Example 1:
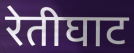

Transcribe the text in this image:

रेतीघाट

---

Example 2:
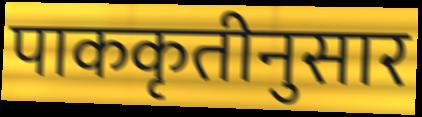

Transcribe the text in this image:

पाककृतीनुसार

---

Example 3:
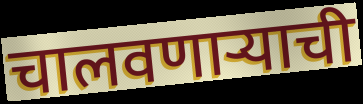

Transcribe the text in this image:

चालवणाऱ्याची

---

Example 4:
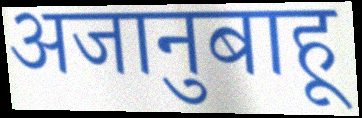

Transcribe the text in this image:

अजानुबाहू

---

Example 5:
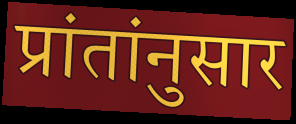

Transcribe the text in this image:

प्रांतांनुसार